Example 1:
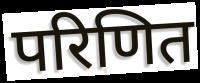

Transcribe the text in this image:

परिणित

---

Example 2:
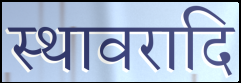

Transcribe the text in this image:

स्थावरादि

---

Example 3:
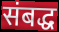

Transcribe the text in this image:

संबद्ध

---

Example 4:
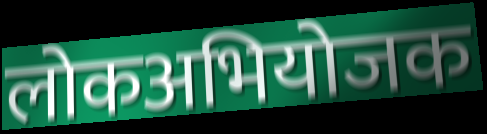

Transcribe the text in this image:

लोकअभियोजक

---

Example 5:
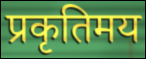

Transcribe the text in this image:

प्रकृतिमय